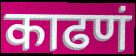
काढणं